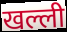
खल्ली